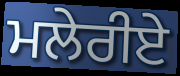
ਮਲੇਰੀਏ